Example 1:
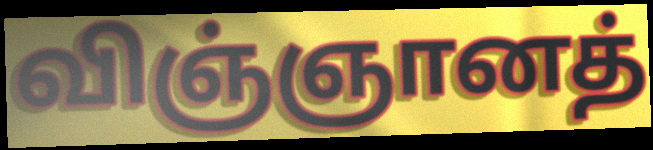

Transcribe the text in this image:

விஞ்ஞானத்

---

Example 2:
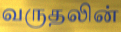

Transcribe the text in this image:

வருதலின்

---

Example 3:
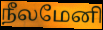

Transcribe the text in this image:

நீலமேனி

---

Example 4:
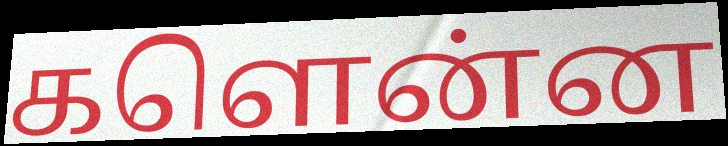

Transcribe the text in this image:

களென்ன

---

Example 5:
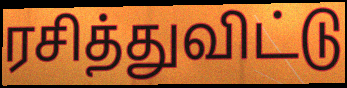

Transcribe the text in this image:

ரசித்துவிட்டு